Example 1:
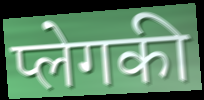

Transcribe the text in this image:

प्लेगकी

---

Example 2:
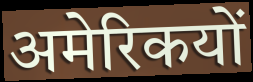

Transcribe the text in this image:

अमेरिकयों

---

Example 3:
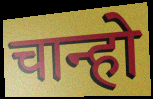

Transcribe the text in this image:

चान्हो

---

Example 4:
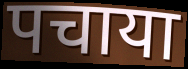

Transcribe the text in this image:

पचाया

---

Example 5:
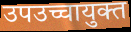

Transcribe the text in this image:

उपउच्चायुक्त